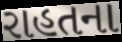
રાહતના